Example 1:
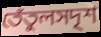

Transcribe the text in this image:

তেঁতুলসদৃশ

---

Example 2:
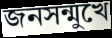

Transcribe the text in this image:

জনসন্মুখে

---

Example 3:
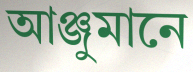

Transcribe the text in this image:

আঞ্জুমানে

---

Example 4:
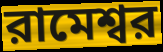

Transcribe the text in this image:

রামেশ্বর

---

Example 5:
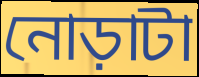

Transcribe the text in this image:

নোড়াটা